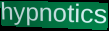
hypnotics